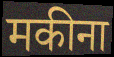
मकीना